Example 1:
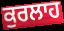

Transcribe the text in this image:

ਕੁਰਲਾਹ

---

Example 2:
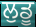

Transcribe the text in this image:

ਲੁਡੂ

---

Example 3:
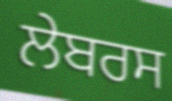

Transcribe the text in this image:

ਲੇਬਰਸ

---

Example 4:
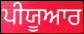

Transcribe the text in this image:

ਪੀਯੂਆਰ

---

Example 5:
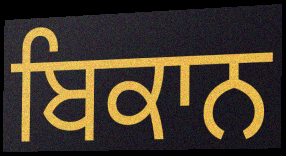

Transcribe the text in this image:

ਬਿਕਾਨ